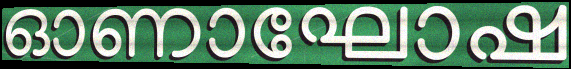
ഓണാഘോഷ